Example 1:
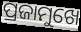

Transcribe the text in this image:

ପ୍ରଜାମୁଖେ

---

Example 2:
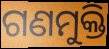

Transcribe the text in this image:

ଗଣମୁକ୍ତି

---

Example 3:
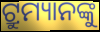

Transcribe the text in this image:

ଟ୍ରୁମ୍ୟାନଙ୍କୁ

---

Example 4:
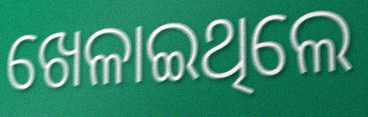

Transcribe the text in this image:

ଖେଳାଇଥିଲେ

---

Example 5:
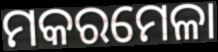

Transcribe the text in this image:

ମକରମେଳା